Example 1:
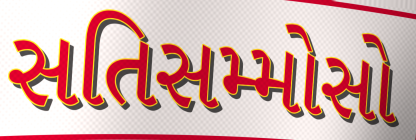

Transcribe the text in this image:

સતિસમ્મોસો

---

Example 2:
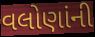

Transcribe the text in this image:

વલોણાંની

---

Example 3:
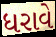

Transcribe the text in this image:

ધરાવે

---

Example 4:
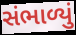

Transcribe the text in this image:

સંભાળ્યું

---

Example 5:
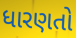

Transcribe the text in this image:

ધારણતો